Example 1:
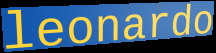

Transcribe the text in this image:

leonardo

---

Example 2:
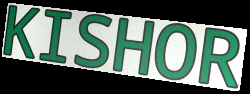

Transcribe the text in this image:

KISHOR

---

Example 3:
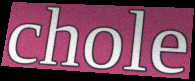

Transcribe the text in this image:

chole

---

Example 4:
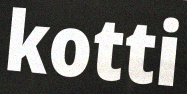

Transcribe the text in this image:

kotti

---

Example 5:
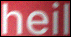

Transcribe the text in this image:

heil